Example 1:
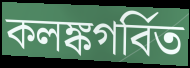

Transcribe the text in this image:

কলঙ্কগর্বিত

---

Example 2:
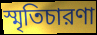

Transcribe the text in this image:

স্মৃতিচারণা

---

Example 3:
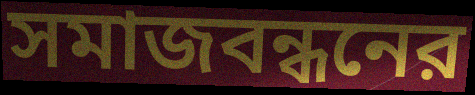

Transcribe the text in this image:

সমাজবন্ধনের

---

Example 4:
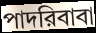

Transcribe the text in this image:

পাদরিবাবা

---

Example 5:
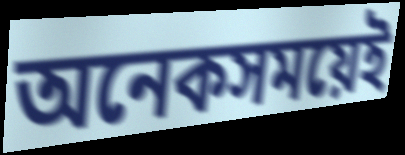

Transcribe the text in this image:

অনেকসময়েই